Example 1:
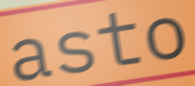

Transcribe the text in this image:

asto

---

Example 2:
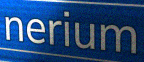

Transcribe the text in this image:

nerium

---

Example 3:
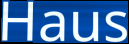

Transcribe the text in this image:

Haus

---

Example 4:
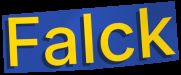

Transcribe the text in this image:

Falck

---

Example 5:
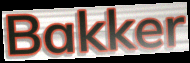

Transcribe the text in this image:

Bakker